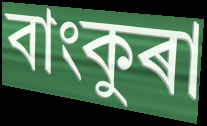
বাংকুৰা